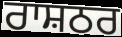
ਰਾਸ਼ਠਰ